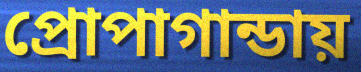
প্রোপাগান্ডায়